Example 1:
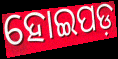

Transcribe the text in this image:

ହୋଇପଡ଼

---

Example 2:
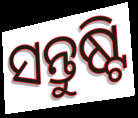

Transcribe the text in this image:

ସନ୍ତୁଷ୍ଟି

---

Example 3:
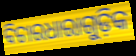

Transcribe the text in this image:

ବିଚାରଧାରାଗୁଡ଼ିକ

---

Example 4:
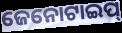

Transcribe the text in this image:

ଜେନୋଟାଇପ୍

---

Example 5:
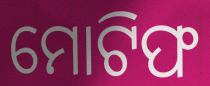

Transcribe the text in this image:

ମୋଟିଫ